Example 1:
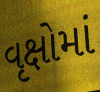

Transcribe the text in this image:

વૃક્ષોમાં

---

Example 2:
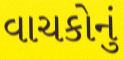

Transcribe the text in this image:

વાચકોનું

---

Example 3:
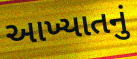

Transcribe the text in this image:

આખ્યાતનું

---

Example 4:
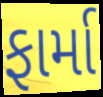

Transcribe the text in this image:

ફાર્મા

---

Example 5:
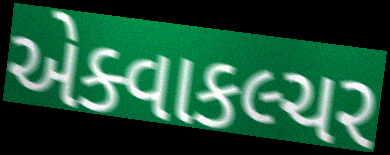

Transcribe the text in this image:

એક્વાકલ્ચર